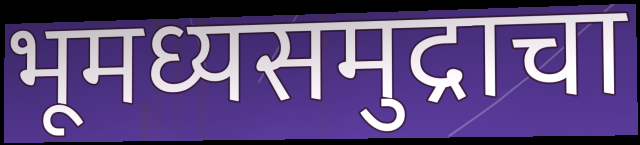
भूमध्यसमुद्राचा